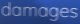
damages